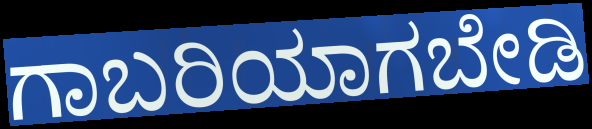
ಗಾಬರಿಯಾಗಬೇಡಿ